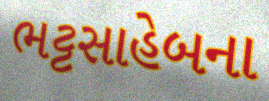
ભટ્ટસાહેબના